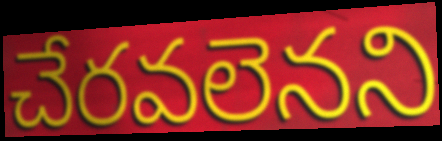
చేరవలెనని